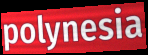
polynesia